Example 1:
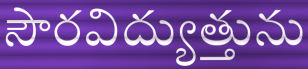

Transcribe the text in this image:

సౌరవిద్యుత్తును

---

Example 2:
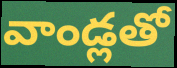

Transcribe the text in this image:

వాండ్లతో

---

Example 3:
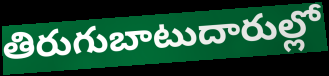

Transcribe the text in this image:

తిరుగుబాటుదారుల్లో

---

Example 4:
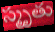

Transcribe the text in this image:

స్మృతు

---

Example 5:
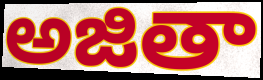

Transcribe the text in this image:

అజితా